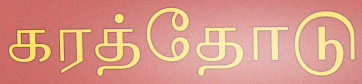
கரத்தோடு